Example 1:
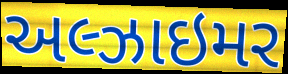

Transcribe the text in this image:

અલ્ઝાઇમર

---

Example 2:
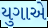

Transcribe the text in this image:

યુગાએ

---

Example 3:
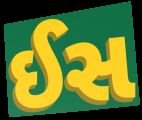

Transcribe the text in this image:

ઈસ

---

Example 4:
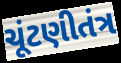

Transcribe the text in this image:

ચૂંટણીતંત્ર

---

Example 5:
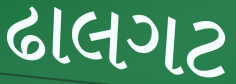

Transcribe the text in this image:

ઢાલગટ